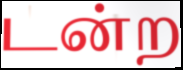
டன்ற